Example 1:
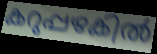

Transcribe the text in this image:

കറുപ്പഴകിൽ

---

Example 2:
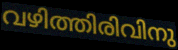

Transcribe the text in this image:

വഴിത്തിരിവിനു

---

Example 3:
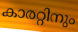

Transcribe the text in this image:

കാരറ്റിനും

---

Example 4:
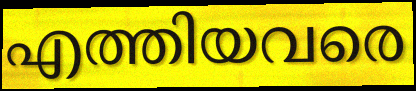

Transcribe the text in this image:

എത്തിയവരെ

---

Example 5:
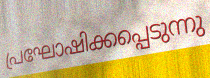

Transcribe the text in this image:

പ്രഘോഷിക്കപ്പെടുന്നു